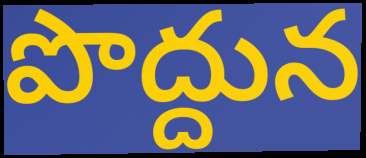
పొద్దున